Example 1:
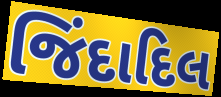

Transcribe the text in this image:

જિંદાદિલ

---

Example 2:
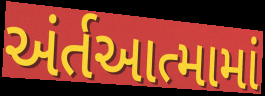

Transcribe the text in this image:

અંર્તઆત્મામાં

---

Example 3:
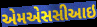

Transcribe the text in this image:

એમએસસીઆઇ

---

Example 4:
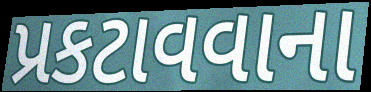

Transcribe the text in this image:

પ્રકટાવવાના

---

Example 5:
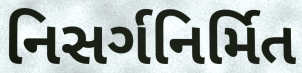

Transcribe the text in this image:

નિસર્ગનિર્મિત